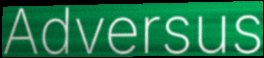
Adversus